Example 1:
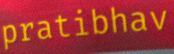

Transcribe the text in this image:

pratibhav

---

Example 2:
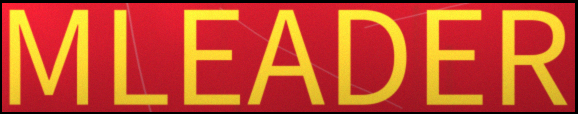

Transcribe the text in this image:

MLEADER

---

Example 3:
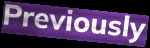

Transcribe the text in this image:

Previously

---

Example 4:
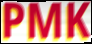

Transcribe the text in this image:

PMK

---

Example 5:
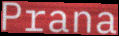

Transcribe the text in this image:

Prana